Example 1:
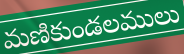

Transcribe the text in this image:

మణికుండలములు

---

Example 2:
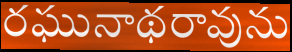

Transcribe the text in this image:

రఘునాథరావును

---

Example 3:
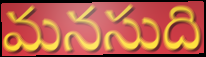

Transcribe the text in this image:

మనసుది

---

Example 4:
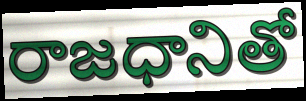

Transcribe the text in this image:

రాజధానితో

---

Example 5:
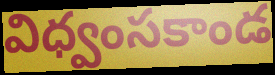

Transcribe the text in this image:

విధ్వంసకాండ